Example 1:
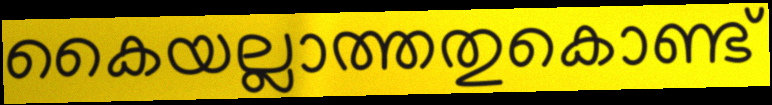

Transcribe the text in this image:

കൈയല്ലാത്തതുകൊണ്ട്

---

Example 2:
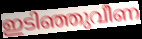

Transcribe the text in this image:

ഇടിഞ്ഞുവീണ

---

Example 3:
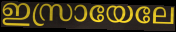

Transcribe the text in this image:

ഇസ്രായേലേ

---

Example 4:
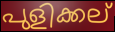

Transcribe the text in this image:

പുളിക്കല്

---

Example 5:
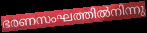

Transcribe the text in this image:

ഭരണസംഘത്തിൽനിന്നു